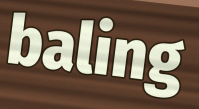
baling